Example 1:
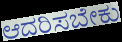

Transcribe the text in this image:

ಆದರಿಸಬೇಕು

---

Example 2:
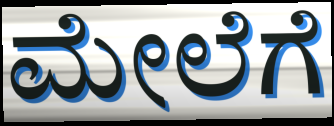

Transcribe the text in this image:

ಮೇಲೆಗೆ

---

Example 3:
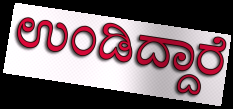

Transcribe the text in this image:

ಉಂಡಿದ್ದಾರೆ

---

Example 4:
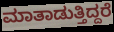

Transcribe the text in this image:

ಮಾತಾಡುತ್ತಿದ್ದರೆ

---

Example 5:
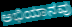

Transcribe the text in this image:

ಅಭಿಯಾನವು